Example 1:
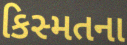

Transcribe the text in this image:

કિસ્મતના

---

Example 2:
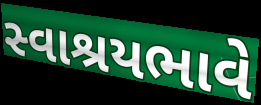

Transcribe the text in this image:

સ્વાશ્રયભાવે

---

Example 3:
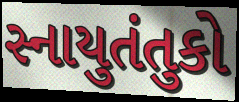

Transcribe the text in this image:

સ્નાયુતંતુકો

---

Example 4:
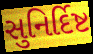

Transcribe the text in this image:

સુનિર્દિષ્ટ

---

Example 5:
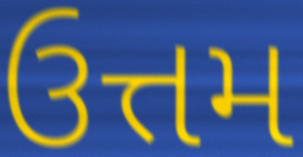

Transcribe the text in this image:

ઉત્તમ